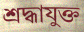
শ্রদ্ধাযুক্ত